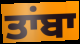
ਤਾਂਬਾ